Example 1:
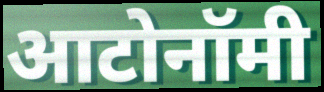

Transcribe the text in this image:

आटोनॉमी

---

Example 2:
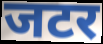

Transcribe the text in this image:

जटर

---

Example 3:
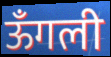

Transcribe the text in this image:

ऊँगली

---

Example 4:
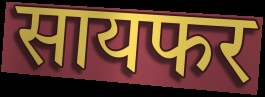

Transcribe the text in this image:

सायफर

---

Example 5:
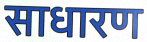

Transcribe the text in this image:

साधारण